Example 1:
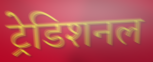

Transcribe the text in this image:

ट्रेडिशनल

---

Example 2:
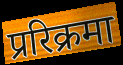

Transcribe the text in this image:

प्ररिक्रमा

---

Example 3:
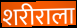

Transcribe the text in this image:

शरीराला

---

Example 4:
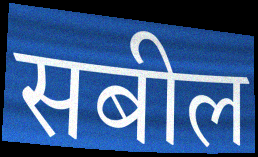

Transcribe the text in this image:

सबील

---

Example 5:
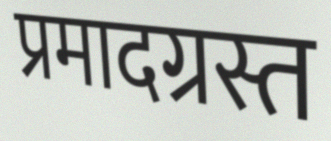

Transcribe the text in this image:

प्रमादग्रस्त